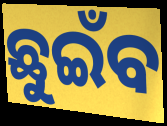
ଛୁଇଁବ